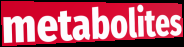
metabolites